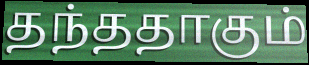
தந்ததாகும்